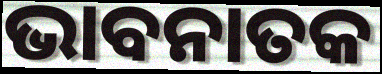
ଭାବନାତକ